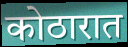
कोठारात